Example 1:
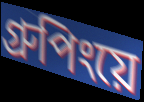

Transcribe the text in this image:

গ্রুপিংয়ে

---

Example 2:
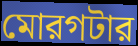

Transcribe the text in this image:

মোরগটার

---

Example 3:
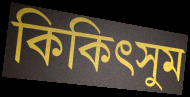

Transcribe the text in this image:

কিকিৎসুম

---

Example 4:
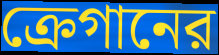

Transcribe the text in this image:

ক্রেগানের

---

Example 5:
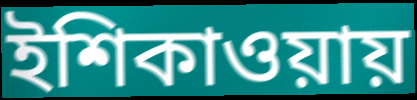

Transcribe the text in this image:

ইশিকাওয়ায়